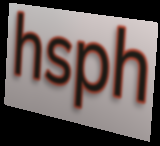
hsph